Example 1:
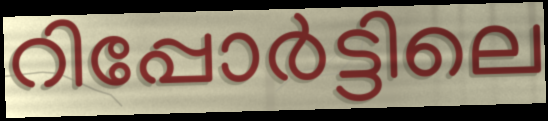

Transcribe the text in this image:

റിപ്പോർട്ടിലെ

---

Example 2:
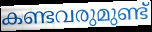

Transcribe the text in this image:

കണ്ടവരുമുണ്ട്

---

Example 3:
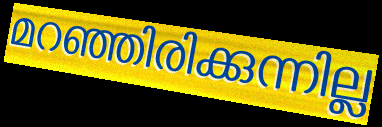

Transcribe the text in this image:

മറഞ്ഞിരിക്കുന്നില്ല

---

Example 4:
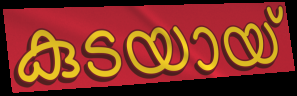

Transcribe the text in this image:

കുടയായ്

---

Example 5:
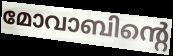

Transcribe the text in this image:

മോവാബിന്റെ